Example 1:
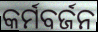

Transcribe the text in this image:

କର୍ମବର୍ଜନ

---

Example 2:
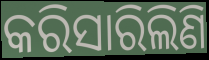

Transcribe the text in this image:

କରିସାରିଲିଣି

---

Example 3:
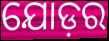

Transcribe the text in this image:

ଯୋଡ଼ର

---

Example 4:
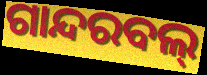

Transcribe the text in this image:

ଗାନ୍ଦରବଲ୍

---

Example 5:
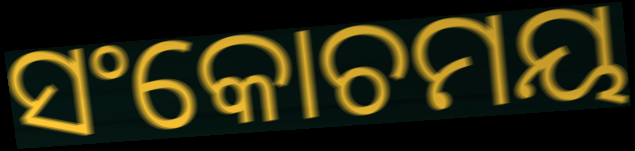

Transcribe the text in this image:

ସଂକୋଚମୟ